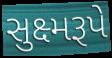
સુક્ષ્મરૂપે